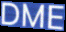
DME